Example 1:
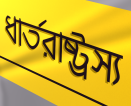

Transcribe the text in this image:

ধার্তরাষ্ট্রস্য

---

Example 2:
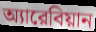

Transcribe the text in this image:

অ্যারেবিয়ান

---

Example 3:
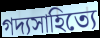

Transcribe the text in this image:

গদ্যসাহিত্যে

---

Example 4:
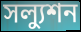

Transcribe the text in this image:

সল্যুশন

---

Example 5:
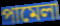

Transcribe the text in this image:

পামেলা